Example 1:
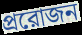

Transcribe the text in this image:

প্ররোজন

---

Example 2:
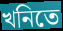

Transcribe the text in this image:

খনিতে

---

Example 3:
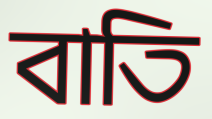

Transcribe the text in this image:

বাতি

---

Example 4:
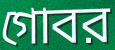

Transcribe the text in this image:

গোবর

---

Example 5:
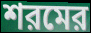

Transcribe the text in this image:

শরমের